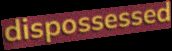
dispossessed